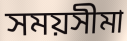
সময়সীমা